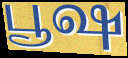
பூஷ